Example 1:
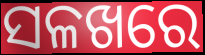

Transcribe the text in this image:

ସଳଖରେ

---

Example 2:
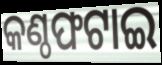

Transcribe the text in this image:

କଣ୍ଠଫଟାଇ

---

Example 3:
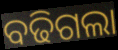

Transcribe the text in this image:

ବଢିଗଲା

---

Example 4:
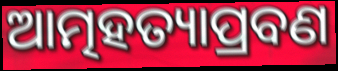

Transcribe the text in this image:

ଆତ୍ମହତ୍ୟାପ୍ରବଣ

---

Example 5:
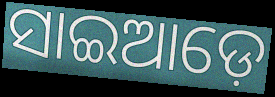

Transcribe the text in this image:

ସାଇଆଡ଼େ